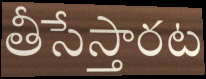
తీసేస్తారట